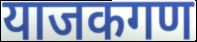
याजकगण